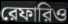
রেফারিও